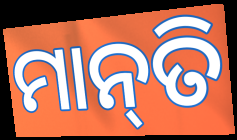
ମାନ୍‌ତି